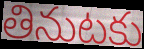
తినుటకు